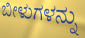
ಬೀಳುಗಳನ್ನು